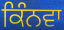
ਕਿੰਨਵਾ